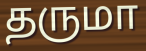
தருமா